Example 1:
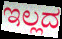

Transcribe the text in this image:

ಇಲ್ಲದ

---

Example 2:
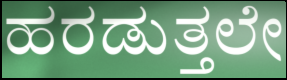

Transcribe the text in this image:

ಹರಡುತ್ತಲೇ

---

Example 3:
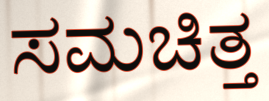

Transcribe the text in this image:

ಸಮಚಿತ್ತ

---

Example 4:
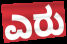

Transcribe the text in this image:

ಎರು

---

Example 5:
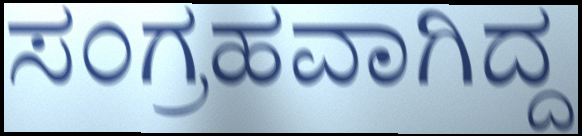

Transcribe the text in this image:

ಸಂಗ್ರಹವಾಗಿದ್ದ